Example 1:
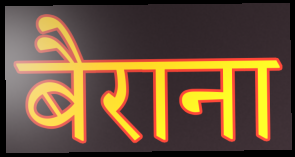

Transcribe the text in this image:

बैराना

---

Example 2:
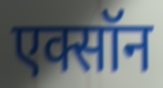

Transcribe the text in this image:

एक्सॉन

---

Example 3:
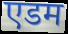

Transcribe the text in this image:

एडम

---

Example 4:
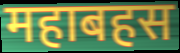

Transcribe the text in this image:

महाबहस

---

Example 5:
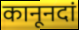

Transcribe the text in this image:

कानूनदां